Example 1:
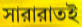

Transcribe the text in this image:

সারারাতই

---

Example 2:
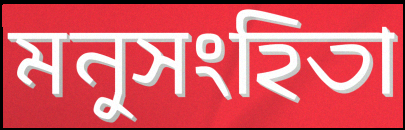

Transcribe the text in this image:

মনুসংহিতা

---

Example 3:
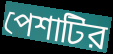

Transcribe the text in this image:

পেশাটির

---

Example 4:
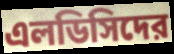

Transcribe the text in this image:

এলডিসিদের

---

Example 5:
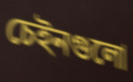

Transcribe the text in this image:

চেইনগুলো